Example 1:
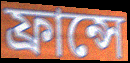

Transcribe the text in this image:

ফ্রান্সে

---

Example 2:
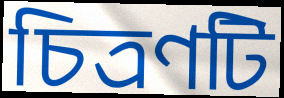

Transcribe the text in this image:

চিত্রণটি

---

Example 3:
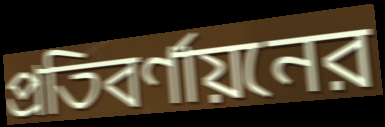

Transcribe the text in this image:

প্রতিবর্ণায়নের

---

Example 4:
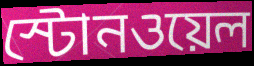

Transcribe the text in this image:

স্টোনওয়েল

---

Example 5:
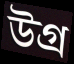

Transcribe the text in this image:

উগ্র